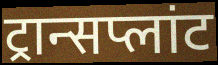
ट्रान्सप्लांट